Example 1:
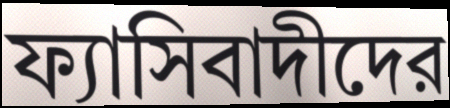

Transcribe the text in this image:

ফ্যাসিবাদীদের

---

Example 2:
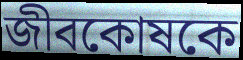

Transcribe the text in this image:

জীবকোষকে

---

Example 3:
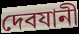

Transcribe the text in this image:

দেবযানী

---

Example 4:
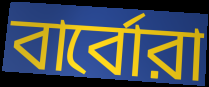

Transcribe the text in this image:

বার্বোরা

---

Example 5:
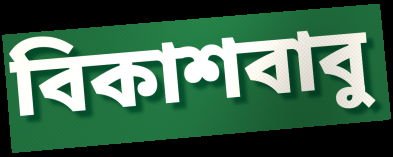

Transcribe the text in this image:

বিকাশবাবু